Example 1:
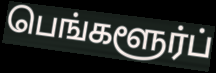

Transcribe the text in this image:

பெங்களூர்ப்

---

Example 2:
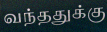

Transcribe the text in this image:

வந்ததுக்கு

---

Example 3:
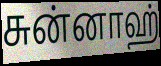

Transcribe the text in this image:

சுன்னாஹ்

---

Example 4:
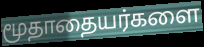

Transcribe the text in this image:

மூதாதையர்களை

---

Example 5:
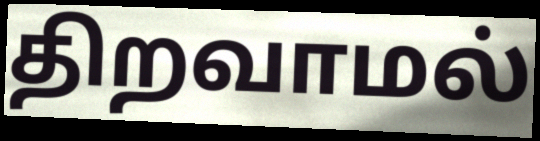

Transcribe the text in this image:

திறவாமல்